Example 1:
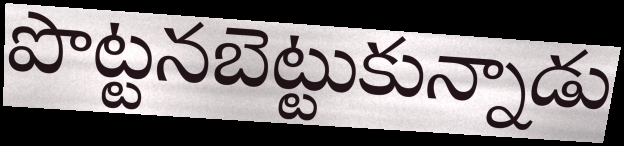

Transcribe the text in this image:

పొట్టనబెట్టుకున్నాడు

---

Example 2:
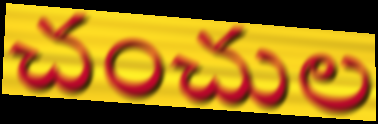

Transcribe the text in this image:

చంచుల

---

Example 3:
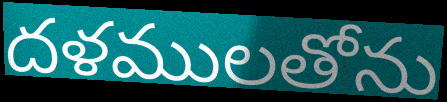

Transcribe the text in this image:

దళములతోను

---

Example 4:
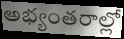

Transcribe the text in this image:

అభ్యంతరాల్లో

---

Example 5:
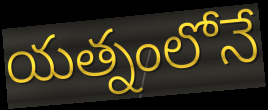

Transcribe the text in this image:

యత్నంలోనే